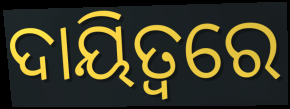
ଦାୟିତ୍ବରେ